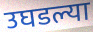
उघडल्या